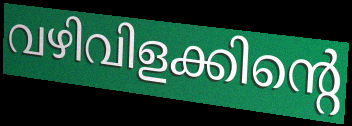
വഴിവിളക്കിന്റെ